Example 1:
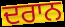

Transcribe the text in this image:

ਦਰਾਨ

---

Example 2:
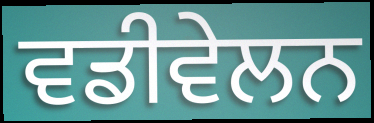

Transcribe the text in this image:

ਵਡੀਵੇਲਨ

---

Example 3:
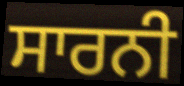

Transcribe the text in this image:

ਸਾਰਨੀ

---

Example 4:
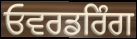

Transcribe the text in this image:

ਓਵਰਡਰਿੰਗ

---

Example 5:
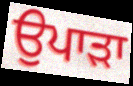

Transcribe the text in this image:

ਉਪਾੜਾ